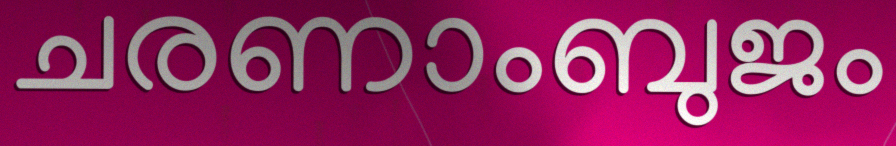
ചരണാംബുജം